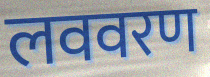
लववरण